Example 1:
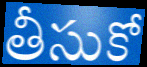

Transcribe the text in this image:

తీసుకో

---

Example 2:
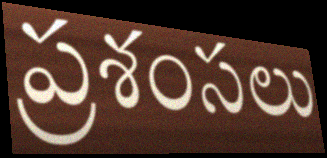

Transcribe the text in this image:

ప్రశంసలు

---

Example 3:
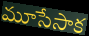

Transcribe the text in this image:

మూసేసాక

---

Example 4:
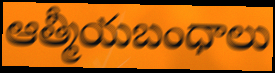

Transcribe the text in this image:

ఆత్మీయబంధాలు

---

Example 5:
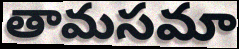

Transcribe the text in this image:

తామసమా